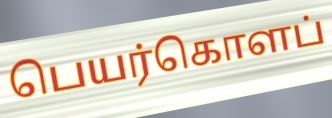
பெயர்கொளப்